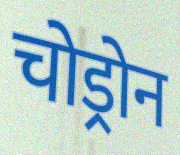
चोड्रोन